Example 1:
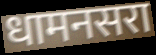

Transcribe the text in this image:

धामनसरा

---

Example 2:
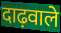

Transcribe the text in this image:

दाढ़वाले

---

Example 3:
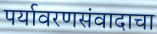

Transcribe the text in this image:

पर्यावरणसंवादाचा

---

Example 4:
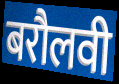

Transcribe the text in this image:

बरौलवी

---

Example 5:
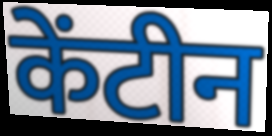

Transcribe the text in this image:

केंटीन